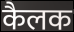
कैलक